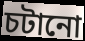
চটানো